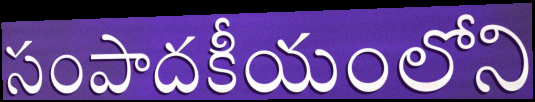
సంపాదకీయంలోని